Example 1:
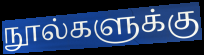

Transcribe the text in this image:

நூல்களுக்கு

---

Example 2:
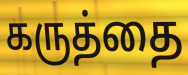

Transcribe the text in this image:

கருத்தை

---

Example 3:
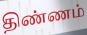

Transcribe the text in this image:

திண்ணம்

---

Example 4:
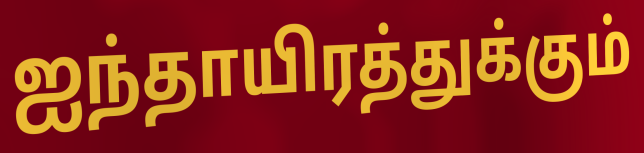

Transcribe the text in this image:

ஐந்தாயிரத்துக்கும்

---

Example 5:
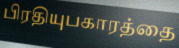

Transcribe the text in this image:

பிரதியுபகாரத்தை